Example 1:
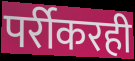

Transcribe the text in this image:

पर्रीकरही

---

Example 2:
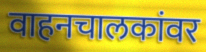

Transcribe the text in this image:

वाहनचालकांवर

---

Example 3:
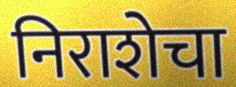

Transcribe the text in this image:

निराशेचा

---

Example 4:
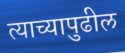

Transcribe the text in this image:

त्याच्यापुढील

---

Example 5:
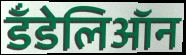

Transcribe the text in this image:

डँडेलिऑन